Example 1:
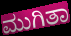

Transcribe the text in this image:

ಮುಗಿತಾ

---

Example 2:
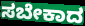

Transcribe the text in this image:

ಸಬೇಕಾದ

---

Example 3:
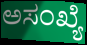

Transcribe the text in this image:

ಅಸಂಖ್ಯೆ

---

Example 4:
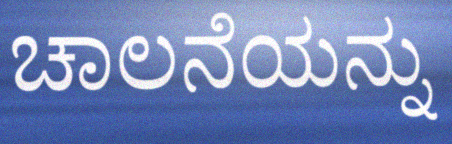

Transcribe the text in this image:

ಚಾಲನೆಯನ್ನು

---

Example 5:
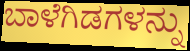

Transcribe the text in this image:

ಬಾಳೆಗಿಡಗಳನ್ನು